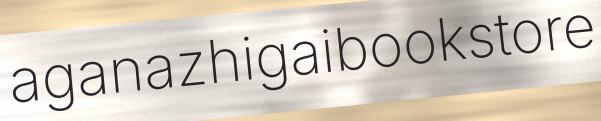
aganazhigaibookstore